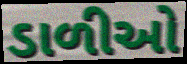
ડાળીઓ